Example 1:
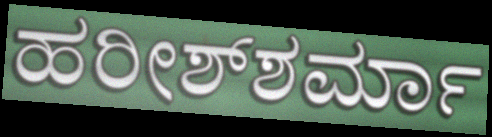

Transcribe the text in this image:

ಹರೀಶ್‌ಶರ್ಮಾ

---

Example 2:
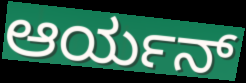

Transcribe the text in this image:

ಆರ್ಯನ್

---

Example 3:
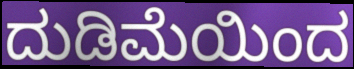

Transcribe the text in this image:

ದುಡಿಮೆಯಿಂದ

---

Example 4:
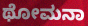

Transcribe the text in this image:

ಥೋಮನಾ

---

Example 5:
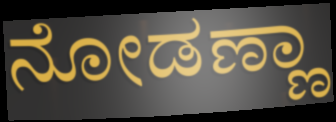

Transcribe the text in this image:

ನೋಡಣ್ಣಾ